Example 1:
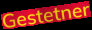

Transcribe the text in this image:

Gestetner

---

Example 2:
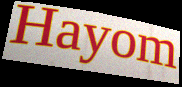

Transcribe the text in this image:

Hayom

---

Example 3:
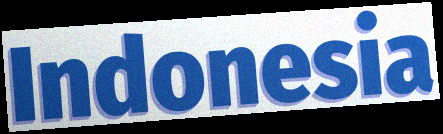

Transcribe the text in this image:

Indonesia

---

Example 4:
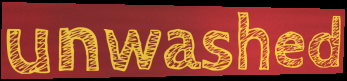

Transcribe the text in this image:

unwashed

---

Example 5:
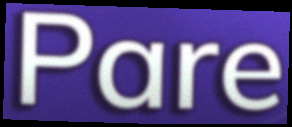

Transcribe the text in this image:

Pare